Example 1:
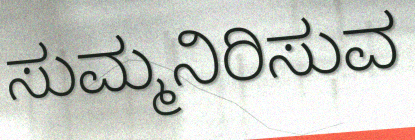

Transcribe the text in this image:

ಸುಮ್ಮನಿರಿಸುವ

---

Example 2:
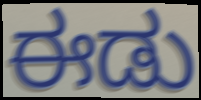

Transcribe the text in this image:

ಈಡು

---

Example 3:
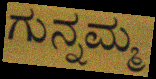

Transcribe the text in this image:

ಗುನ್ನಮ್ಮ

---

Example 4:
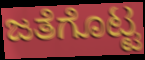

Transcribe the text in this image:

ಜತೆಗೊಟ್ಟ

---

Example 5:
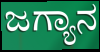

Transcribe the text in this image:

ಜಗ್ಯಾನ